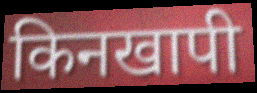
किनखापी